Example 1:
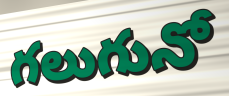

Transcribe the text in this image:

గలుగునో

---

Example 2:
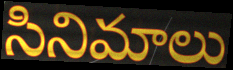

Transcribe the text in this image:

సినిమాలు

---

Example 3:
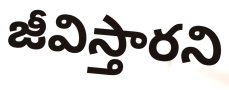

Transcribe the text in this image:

జీవిస్తారని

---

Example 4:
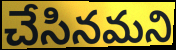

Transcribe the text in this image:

చేసినమని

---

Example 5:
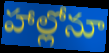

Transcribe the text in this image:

హాల్లోనూ